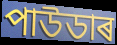
পাউডাৰ